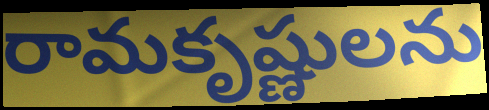
రామకృష్ణులను